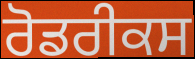
ਰੋਡਰੀਕਸ